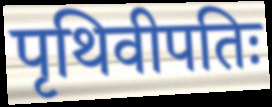
पृथिवीपतिः